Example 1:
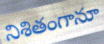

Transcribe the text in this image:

నిశితంగానూ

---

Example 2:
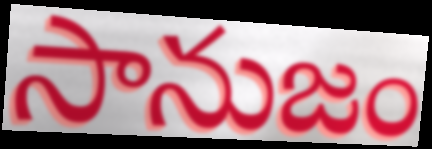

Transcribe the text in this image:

సానుజం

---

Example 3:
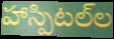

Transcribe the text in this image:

హాస్పిటల్‌ల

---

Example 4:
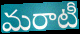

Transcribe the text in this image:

మరాటీ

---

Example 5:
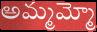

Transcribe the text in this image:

అమ్మమ్మో